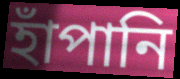
হাঁপানি